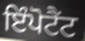
ਇੰਪੋਟੈਂਟ